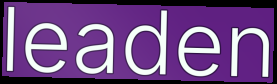
leaden